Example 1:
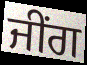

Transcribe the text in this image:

ਜੀਂਗ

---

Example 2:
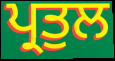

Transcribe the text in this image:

ਪ੍ਰਤੁਲ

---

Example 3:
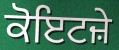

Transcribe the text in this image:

ਕੋਇਟਜ਼ੇ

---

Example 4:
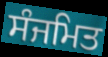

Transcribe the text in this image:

ਸੰਜਮਿਤ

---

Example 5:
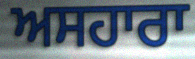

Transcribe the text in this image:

ਅਸਹਾਰਾ